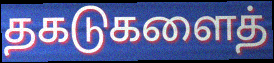
தகடுகளைத்